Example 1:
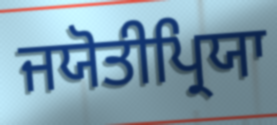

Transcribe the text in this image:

ਜਯੋਤੀਪ੍ਰਿਯਾ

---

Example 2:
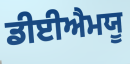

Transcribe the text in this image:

ਡੀਈਐਮਯੂ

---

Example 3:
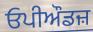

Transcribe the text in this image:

ਓਪੀਔਡਜ਼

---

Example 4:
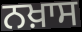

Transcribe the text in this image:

ਨਖ਼ਾਸ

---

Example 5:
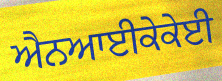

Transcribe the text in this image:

ਐਨਆਈਕੇਕੇਈ